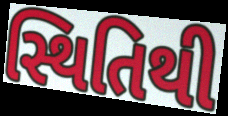
સ્થિતિથી